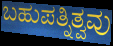
ಬಹುಪತ್ನಿತ್ವವು